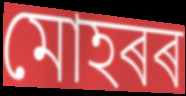
মোহৰৰ